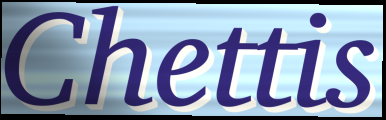
Chettis